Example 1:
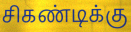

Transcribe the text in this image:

சிகண்டிக்கு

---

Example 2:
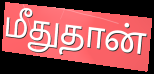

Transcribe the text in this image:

மீதுதான்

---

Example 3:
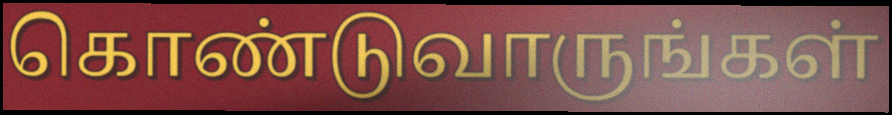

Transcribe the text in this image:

கொண்டுவாருங்கள்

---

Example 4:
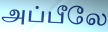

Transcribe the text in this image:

அப்பீலே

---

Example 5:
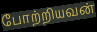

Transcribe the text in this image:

போற்றியவன்